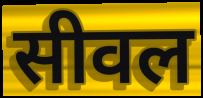
सीवल